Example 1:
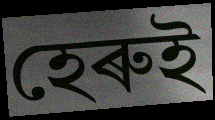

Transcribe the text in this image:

হেৰুই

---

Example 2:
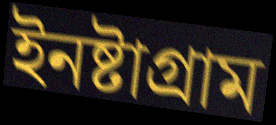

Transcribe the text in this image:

ইনষ্টাগ্ৰাম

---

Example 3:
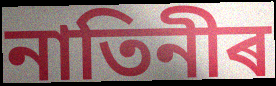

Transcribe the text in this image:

নাতিনীৰ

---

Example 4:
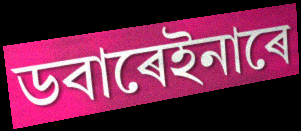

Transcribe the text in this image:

ডবাৰেইনাৰে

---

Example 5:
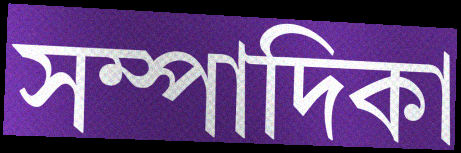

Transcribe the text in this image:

সম্পাদিকা